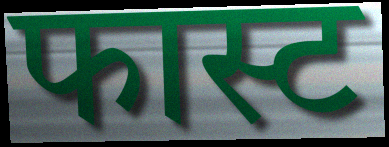
फास्ट